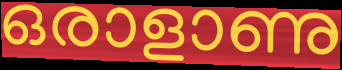
ഒരാളാണു